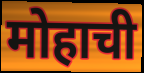
मोहाची